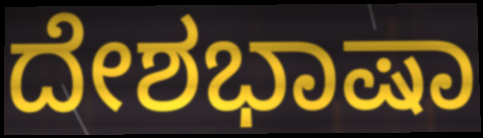
ದೇಶಭಾಷಾ